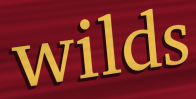
wilds